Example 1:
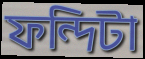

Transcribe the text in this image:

ফন্দিটা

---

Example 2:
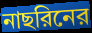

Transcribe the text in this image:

নাছরিনের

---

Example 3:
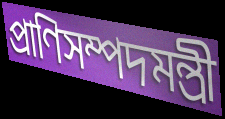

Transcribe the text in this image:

প্রাণিসম্পদমন্ত্রী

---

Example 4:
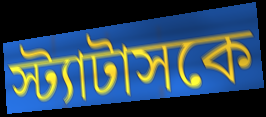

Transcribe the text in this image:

স্ট্যাটাসকে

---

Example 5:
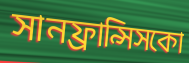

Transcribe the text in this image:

সানফ্রান্সিসকো